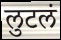
लुटलं